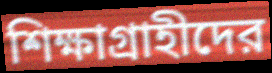
শিক্ষাগ্রাহীদের